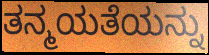
ತನ್ಮಯತೆಯನ್ನು